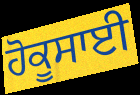
ਹੋਕੂਸਾਈ